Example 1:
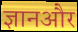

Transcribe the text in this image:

ज्ञानऔर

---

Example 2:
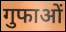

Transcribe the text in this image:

गुफाओं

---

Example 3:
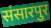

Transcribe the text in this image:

संसारपुर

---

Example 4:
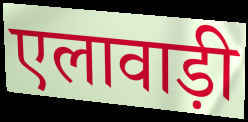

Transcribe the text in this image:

एलावाड़ी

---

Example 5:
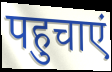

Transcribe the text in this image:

पहुचाएं